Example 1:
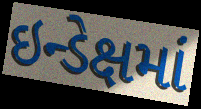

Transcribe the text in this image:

ઇન્ડેક્ષમાં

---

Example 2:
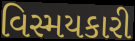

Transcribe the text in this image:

વિસ્મયકારી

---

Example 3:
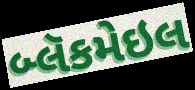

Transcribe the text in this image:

બ્લૅકમેઇલ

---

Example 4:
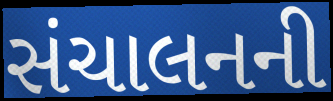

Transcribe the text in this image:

સંચાલનની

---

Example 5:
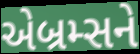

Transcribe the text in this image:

એબ્રમ્સને